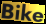
Bike